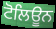
ਟੋਲਿਊਨ